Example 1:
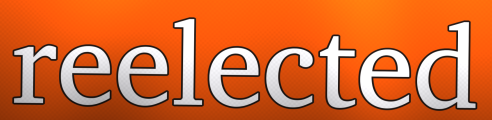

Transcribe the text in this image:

reelected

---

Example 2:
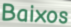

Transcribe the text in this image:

Baixos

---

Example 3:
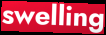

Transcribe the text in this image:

swelling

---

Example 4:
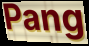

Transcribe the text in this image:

Pang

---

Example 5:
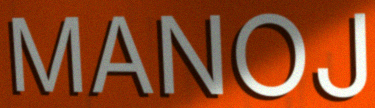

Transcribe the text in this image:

MANOJ